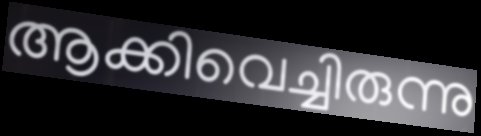
ആക്കിവെച്ചിരുന്നു